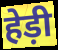
हेड़ी